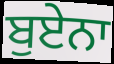
ਬੁਏਨਾ